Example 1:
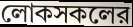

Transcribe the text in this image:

লোকসকলের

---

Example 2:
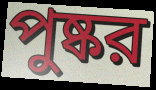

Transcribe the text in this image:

পুষ্কর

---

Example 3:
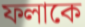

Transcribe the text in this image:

ফলাকে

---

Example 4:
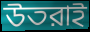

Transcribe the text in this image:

উতরাই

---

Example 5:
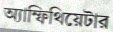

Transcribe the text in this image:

অ্যাম্ফিথিয়েটার